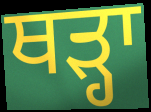
ਥੜ੍ਹਾ